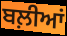
ਬਲ਼ੀਆਂ